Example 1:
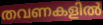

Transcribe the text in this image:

തവണകളിൽ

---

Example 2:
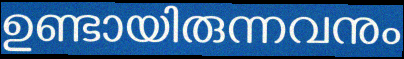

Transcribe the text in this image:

ഉണ്ടായിരുന്നവനും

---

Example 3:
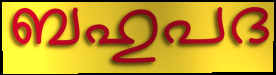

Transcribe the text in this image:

ബഹുപദ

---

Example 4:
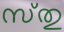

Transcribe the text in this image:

സ്‌തു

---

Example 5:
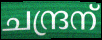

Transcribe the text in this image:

ചന്ദ്രന്